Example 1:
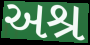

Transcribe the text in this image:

અશ્ર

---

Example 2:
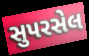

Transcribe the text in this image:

સુપરસેલ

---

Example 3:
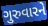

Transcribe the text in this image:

ગુરુવારને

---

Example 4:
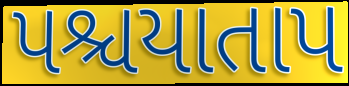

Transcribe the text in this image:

પશ્ચયાતાપ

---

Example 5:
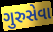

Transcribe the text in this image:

ગુરુસેવા